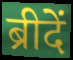
ब्रीदें